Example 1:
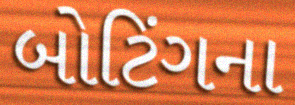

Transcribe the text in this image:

બોટિંગના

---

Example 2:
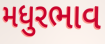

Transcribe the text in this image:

મધુરભાવ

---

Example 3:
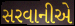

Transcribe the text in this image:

સરવાનીએ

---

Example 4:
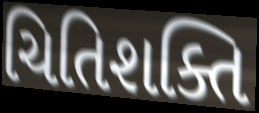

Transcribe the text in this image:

ચિતિશક્તિ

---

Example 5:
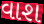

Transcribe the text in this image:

વાશ